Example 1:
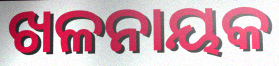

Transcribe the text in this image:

ଖଳନାୟକ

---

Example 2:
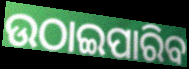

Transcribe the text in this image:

ଉଠାଇପାରିବ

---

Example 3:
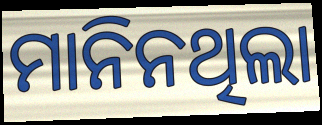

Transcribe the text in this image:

ମାନିନଥିଲା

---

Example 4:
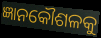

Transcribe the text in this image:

ଜ୍ଞାନକୌଶଳକୁ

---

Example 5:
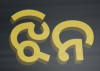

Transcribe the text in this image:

ଝିନ